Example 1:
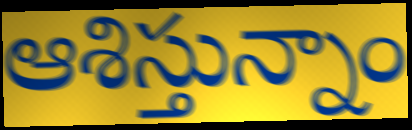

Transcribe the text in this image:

ఆశిస్తున్నాం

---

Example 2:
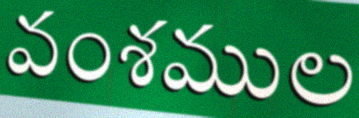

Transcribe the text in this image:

వంశముల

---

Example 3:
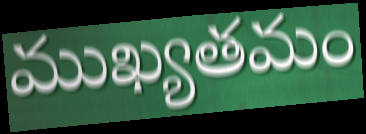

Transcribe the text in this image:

ముఖ్యతమం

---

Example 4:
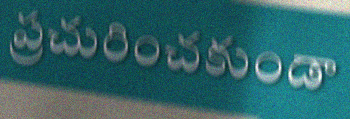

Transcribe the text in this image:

ప్రచురించకుండా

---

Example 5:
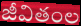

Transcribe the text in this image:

జీవితంల